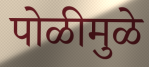
पोळीमुळे